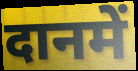
दानमें